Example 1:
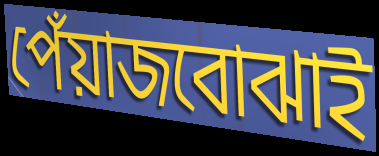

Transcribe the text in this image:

পেঁয়াজবোঝাই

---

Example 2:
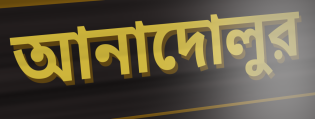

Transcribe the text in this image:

আনাদোলুর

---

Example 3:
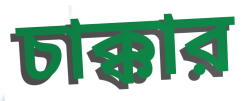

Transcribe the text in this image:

চাক্কার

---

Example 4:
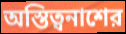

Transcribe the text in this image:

অস্তিত্বনাশের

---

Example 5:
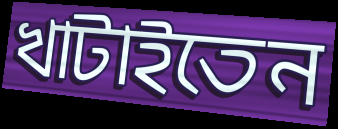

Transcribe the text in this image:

খাটাইতেন